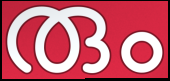
രും